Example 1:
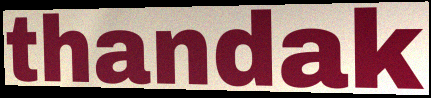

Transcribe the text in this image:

thandak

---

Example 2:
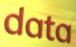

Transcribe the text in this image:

data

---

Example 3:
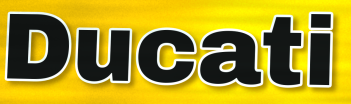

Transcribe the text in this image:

Ducati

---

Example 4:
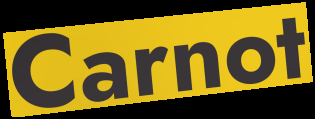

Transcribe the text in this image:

Carnot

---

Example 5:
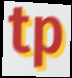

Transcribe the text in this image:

tp